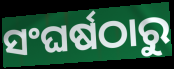
ସଂଘର୍ଷଠାରୁ